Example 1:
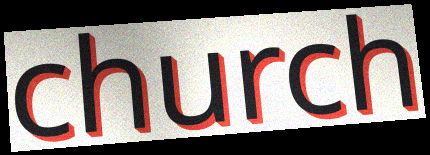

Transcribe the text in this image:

church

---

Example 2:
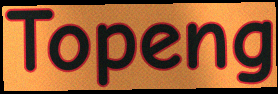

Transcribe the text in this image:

Topeng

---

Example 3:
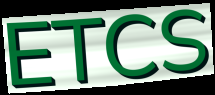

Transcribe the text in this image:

ETCS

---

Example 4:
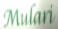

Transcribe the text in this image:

Mulari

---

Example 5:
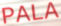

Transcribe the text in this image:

PALA